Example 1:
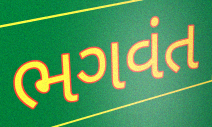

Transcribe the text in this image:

ભગવંત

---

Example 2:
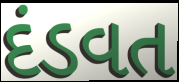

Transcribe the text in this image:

દંડવત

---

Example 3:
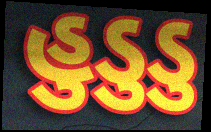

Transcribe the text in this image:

હુડુડુ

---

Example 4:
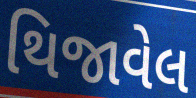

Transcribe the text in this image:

થિજાવેલ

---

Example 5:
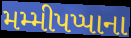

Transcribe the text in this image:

મમ્મીપપ્પાના